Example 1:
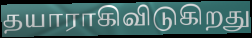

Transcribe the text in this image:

தயாராகிவிடுகிறது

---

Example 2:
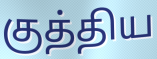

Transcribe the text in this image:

குத்திய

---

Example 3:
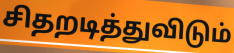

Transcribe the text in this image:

சிதறடித்துவிடும்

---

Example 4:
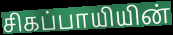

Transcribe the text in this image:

சிகப்பாயியின்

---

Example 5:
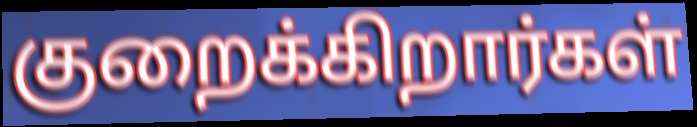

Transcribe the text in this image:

குறைக்கிறார்கள்